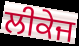
ਲੀਕੇਜ